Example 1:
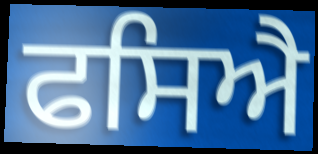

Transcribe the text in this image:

ਫਸਿਐ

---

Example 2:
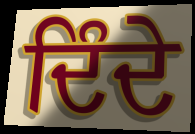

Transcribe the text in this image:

ਦਿੰਦੇ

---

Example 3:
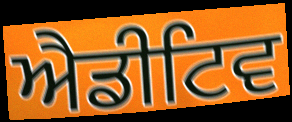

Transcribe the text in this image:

ਐਡੀਟਿਵ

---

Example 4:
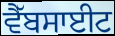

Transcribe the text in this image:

ਵੈੱਬਸਾਈਟ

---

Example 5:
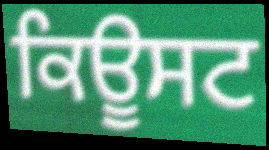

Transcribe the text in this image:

ਕਿਊਸਟ